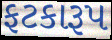
ફટકારૂપ